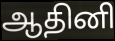
ஆதினி